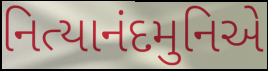
નિત્યાનંદમુનિએ